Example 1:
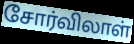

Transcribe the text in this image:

சோர்விலாள்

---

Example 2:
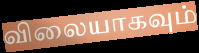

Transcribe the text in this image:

விலையாகவும்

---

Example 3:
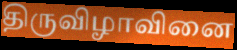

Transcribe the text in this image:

திருவிழாவினை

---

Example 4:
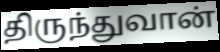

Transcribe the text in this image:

திருந்துவான்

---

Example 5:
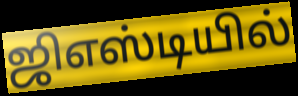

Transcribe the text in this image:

ஜிஎஸ்டியில்